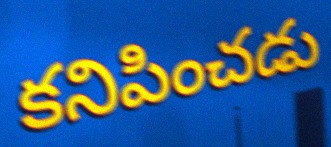
కనిపించడు